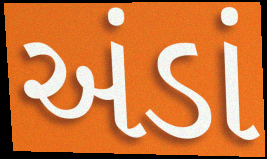
અંડાં